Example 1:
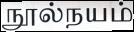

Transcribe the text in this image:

நூல்நயம்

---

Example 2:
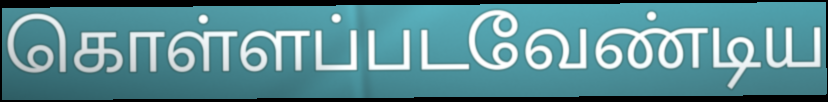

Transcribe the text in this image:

கொள்ளப்படவேண்டிய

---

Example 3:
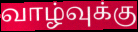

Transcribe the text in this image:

வாழ்வுக்கு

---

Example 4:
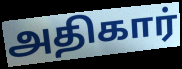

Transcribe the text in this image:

அதிகார்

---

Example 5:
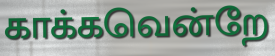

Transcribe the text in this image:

காக்கவென்றே